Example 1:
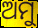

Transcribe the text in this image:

ଅମୁ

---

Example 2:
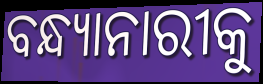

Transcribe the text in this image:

ବନ୍ଧ୍ୟାନାରୀକୁ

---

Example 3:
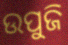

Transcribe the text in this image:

ଉପୁଜି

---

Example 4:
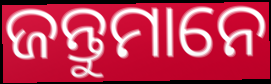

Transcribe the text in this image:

ଜନ୍ତୁମାନେ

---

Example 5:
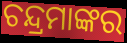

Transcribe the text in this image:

ଚନ୍ଦ୍ରମାଙ୍କର